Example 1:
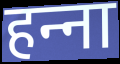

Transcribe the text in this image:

हन्ना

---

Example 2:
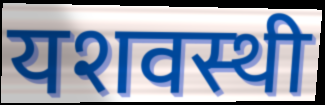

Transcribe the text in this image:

यशवस्थी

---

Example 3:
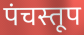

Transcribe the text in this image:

पंचस्तूप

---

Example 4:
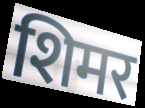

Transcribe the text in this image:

शिमर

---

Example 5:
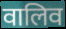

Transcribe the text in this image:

वालिव